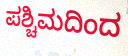
ಪಶ್ಚಿಮದಿಂದ